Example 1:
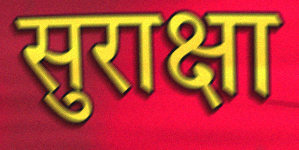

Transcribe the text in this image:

सुराक्षा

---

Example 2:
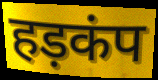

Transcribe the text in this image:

हड़कंप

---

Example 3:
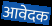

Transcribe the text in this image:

आवेदक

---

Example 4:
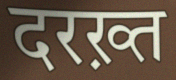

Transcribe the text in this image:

दरख़्त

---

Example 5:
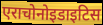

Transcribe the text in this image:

एराचोनोइडाइटिस